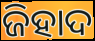
ଜିହାଦ